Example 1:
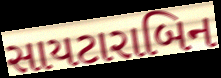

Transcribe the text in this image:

સાયટારાબિન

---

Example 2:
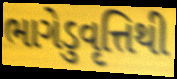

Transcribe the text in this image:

ભાગેડુવૃત્તિથી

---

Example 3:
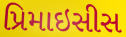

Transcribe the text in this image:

પ્રિમાઇસીસ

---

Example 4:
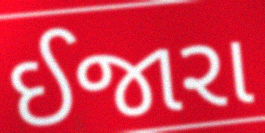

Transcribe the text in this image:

ઈજારા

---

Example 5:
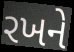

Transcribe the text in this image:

રખને